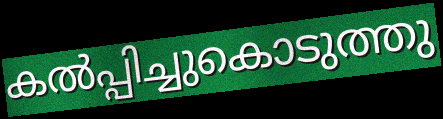
കൽപ്പിച്ചുകൊടുത്തു